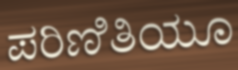
ಪರಿಣಿತಿಯೂ